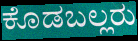
ಕೊಡಬಲ್ಲರು